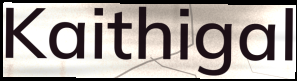
Kaithigal